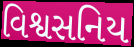
વિશ્વસનિય